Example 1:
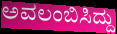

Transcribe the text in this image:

ಅವಲಂಬಿಸಿದ್ದು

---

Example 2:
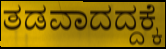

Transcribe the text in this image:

ತಡವಾದದ್ದಕ್ಕೆ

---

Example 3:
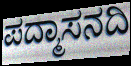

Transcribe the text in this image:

ಪದ್ಮಾಸನದಿ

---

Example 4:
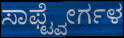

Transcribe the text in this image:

ಸಾಫ್ಟ್ವೇರ್ಗಳ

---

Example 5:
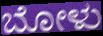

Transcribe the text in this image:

ಬೋಳು